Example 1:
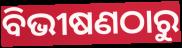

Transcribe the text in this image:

ବିଭୀଷଣଠାରୁ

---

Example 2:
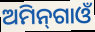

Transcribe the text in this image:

ଅମିନ୍‌ଗାଓଁ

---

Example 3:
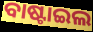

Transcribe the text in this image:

ବାଷ୍ଟାଇଲ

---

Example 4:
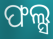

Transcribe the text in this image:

ଫଲ୍ସ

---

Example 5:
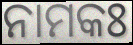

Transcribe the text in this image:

ନାମକଃ